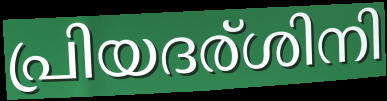
പ്രിയദര്ശിനി